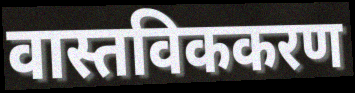
वास्तविककरण